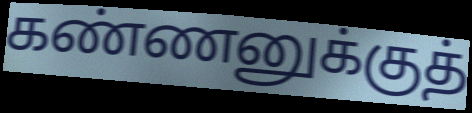
கண்ணனுக்குத்